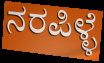
ನರಪಿಳ್ಳೆ